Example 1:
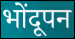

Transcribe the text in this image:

भोंदूपन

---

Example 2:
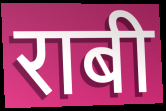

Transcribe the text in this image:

राबी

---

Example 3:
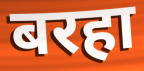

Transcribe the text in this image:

बरहा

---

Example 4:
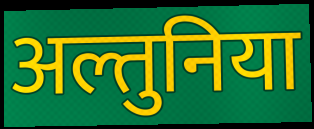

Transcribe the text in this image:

अल्तुनिया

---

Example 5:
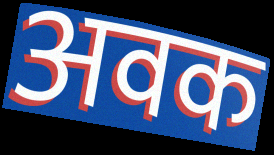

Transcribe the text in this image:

अवक